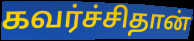
கவர்ச்சிதான்